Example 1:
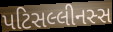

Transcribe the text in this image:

પટિસલ્લીનસ્સ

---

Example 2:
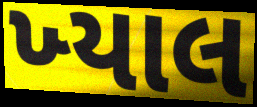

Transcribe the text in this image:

ખ્‍યાલ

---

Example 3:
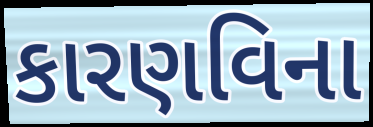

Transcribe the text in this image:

કારણવિના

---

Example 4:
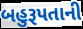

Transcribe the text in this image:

બહુરૂપતાની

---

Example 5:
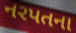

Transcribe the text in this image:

નરપતના